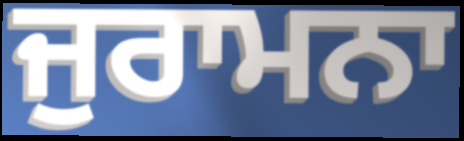
ਜੁਰਾਮਨਾ